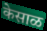
केसाळ